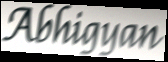
Abhigyan